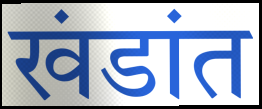
खंडांत